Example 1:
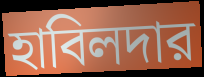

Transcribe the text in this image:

হাবিলদার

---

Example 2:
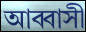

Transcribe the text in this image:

আব্বাসী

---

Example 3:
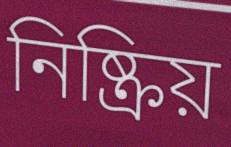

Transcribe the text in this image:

নিষ্ক্রিয়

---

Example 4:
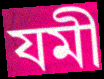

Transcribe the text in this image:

যমী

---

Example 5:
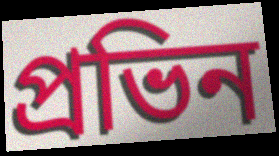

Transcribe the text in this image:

প্রভিন